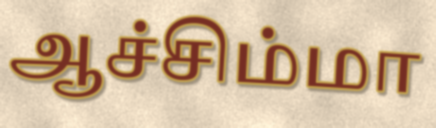
ஆச்சிம்மா